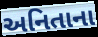
અનિતાના